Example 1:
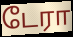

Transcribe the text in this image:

டேரா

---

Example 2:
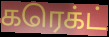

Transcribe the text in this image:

கரெக்ட்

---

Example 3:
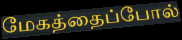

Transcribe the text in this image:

மேகத்தைப்போல்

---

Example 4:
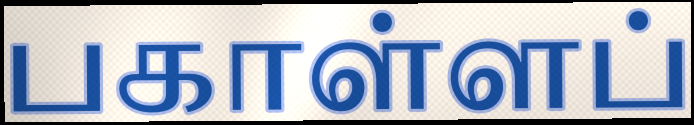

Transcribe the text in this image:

பகாள்ளப்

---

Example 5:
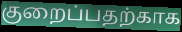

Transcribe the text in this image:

குறைப்பதற்காக